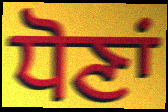
ਧੋਣਾਂ